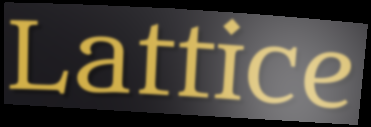
Lattice